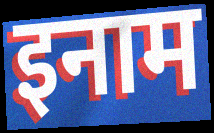
इनाम